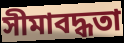
সীমাবদ্ধতা